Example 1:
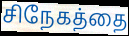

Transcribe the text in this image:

சிநேகத்தை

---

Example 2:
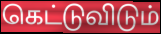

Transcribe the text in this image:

கெட்டுவிடும்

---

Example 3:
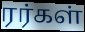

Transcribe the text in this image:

ரர்கள்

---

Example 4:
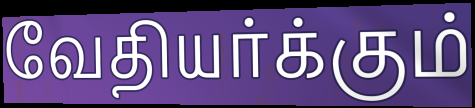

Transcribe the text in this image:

வேதியர்க்கும்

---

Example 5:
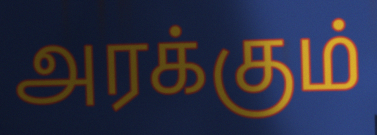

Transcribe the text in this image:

அரக்கும்